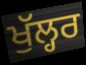
ਖੁੱਲ੍ਹਰ